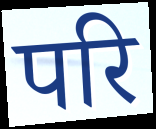
परि